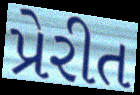
પ્રેરીત